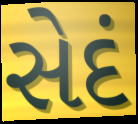
સેદં